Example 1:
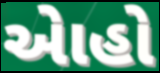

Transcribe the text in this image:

એાહો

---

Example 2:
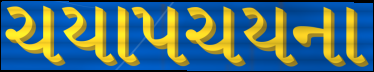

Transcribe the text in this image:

ચયાપચયના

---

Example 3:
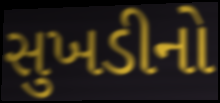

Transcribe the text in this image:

સુખડીનો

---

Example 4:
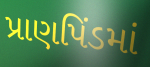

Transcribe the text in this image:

પ્રાણપિંડમાં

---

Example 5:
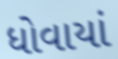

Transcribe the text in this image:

ધોવાયાં